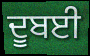
ਦੂਬਈ